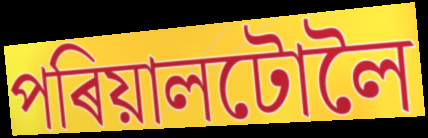
পৰিয়ালটোলৈ